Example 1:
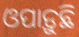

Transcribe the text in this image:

ଓପାଡ଼ୁଛି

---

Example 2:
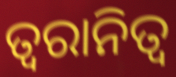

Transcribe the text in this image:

ତ୍ୱରାନିତ୍ଵ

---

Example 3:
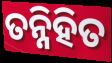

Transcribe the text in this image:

ତନ୍ନିହିତ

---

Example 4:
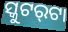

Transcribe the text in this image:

ସ୍କୁଟର୍‌ଟା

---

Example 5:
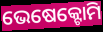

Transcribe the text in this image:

ଭେଷେକ୍ଟୋମି